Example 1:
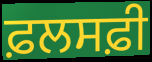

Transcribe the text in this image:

ਫ਼ਲਸਫ਼ੀ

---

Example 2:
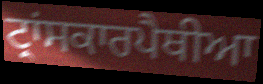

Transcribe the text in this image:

ਟ੍ਰਾਂਸਕਾਰਪੈਥੀਆ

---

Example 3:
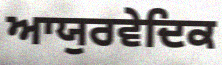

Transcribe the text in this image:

ਆਯੁਰਵੇਦਿਕ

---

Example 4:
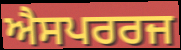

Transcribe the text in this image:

ਐਸਪਰਰਜ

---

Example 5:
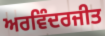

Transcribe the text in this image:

ਅਰਵਿੰਦਰਜੀਤ